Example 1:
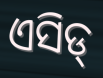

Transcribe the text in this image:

ଏସିଡ୍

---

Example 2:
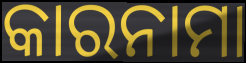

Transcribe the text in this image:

କାରନାମା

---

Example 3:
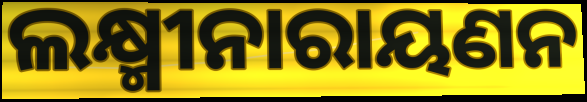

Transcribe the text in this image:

ଲକ୍ଷ୍ମୀନାରାୟଣନ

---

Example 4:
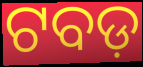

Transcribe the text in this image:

ଟବଡ଼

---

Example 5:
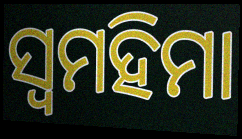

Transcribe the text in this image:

ସ୍ୱମହିମା